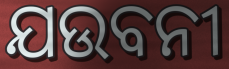
ଯଉବନୀ